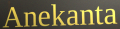
Anekanta